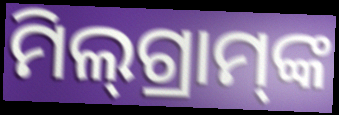
ମିଲ୍‌ଗ୍ରାମ୍‌ଙ୍କ